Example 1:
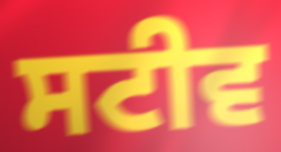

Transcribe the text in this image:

ਸਟੀਵ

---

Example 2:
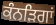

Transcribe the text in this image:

ਕੰਨੜਿਗਾਂ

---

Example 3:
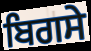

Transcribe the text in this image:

ਬਿਗਸੇ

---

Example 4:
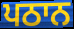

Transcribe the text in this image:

ਪਠਾਨ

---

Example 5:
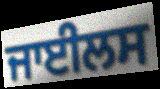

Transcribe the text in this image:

ਜਾਈਲਸ